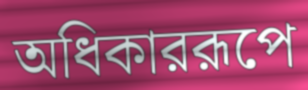
অধিকাররূপে